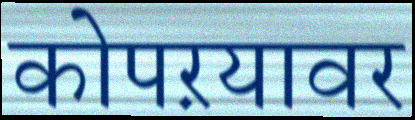
कोपऱयावर